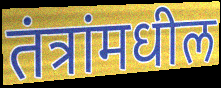
तंत्रांमधील